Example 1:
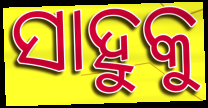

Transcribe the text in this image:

ସାହୁକୁ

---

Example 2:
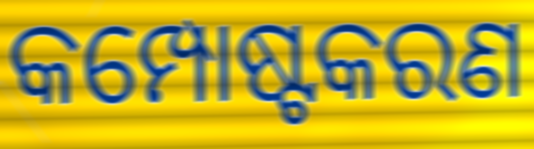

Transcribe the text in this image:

କମ୍ପୋଷ୍ଟକରଣ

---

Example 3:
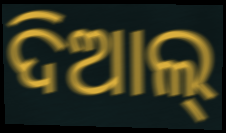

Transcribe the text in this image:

ଦିଆଲ୍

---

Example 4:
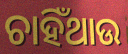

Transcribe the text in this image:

ଚାହିଁଥାଉ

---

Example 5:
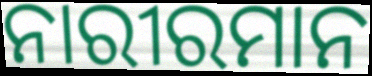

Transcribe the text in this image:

ନାରୀରମାନ